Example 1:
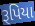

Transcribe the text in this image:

રૂપિયા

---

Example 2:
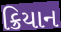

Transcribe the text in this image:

ક્રિયાન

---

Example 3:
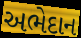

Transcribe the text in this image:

અભેદાન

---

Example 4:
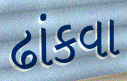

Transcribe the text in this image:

ઢાંકવા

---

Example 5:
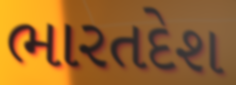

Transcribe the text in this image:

ભારતદેશ